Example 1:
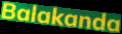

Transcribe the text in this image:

Balakanda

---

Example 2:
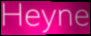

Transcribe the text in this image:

Heyne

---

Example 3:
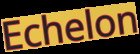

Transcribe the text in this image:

Echelon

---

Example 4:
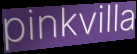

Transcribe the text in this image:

pinkvilla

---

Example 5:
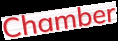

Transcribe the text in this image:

Chamber